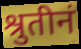
श्रुतीनं